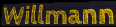
Willmann